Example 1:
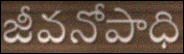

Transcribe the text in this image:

జీవనోపాధి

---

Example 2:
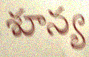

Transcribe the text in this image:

శూన్య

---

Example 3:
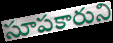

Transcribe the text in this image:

సూపకారుని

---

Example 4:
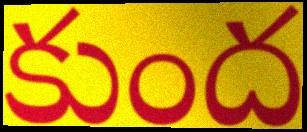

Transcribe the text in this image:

కుంద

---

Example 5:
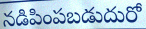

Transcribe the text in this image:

నడిపింపబడుదురో